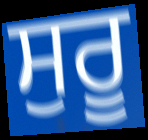
ਸੁਰੂ